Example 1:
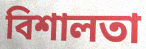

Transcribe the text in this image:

বিশালতা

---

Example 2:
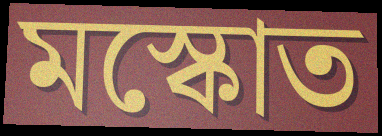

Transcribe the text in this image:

মস্কোত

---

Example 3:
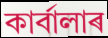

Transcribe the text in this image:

কাৰ্বালাৰ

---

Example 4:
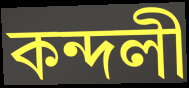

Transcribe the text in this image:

কন্দলী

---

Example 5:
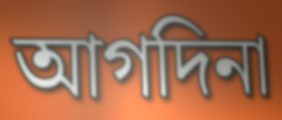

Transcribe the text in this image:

আগদিনা